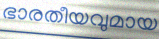
ഭാരതീയവുമായ